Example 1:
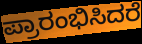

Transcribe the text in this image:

ಪ್ರಾರಂಭಿಸಿದರೆ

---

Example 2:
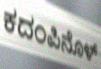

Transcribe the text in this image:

ಕದಂಪಿನೊಳ್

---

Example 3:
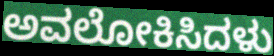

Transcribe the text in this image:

ಅವಲೋಕಿಸಿದಳು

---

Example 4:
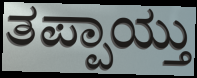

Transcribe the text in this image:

ತಪ್ಪಾಯ್ತು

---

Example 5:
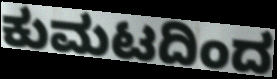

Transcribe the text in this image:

ಕುಮಟದಿಂದ